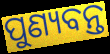
ପୁଣ୍ୟବନ୍ତ